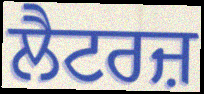
ਲੈਟਰਜ਼